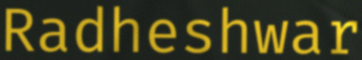
Radheshwar